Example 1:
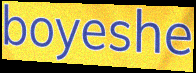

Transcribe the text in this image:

boyeshe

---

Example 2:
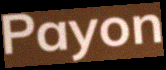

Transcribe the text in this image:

Payon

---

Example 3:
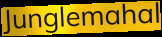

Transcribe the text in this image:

Junglemahal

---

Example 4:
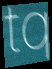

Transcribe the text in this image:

tq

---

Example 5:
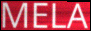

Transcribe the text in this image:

MELA